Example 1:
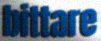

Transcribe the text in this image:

bittare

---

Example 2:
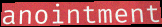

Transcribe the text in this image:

anointment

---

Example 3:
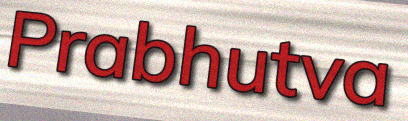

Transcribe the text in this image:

Prabhutva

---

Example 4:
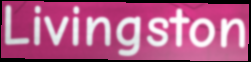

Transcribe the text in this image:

Livingston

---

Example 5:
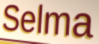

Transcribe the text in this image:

Selma